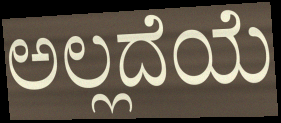
ಅಲ್ಲದೆಯೆ